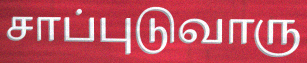
சாப்புடுவாரு